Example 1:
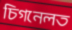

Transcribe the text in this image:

চিগনেলত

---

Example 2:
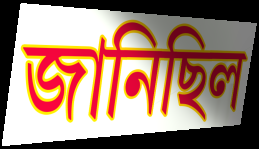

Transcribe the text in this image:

জানিছিল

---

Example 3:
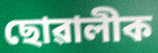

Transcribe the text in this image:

ছোৱালীক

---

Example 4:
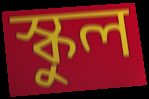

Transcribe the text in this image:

স্কুল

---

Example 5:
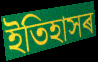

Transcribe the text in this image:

ইতিহাসৰ